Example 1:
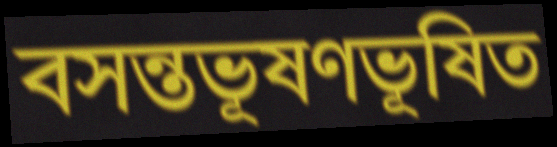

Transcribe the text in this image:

বসন্তভূষণভূষিত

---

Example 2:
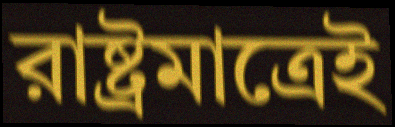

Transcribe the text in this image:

রাষ্ট্রমাত্রেই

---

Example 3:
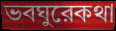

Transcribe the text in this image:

ভবঘুরেকথা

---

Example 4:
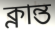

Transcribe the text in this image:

ক্নান্ত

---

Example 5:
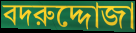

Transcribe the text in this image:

বদরুদ্দোজা